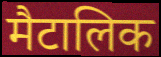
मैटालिक